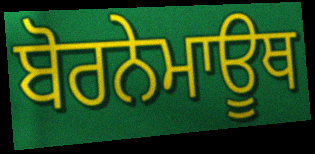
ਬੋਰਨੇਮਾਊਥ